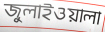
জুলাইওয়ালা